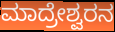
ಮಾದ್ರೇಶ್ವರನ